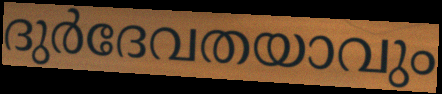
ദുർദേവതയാവും